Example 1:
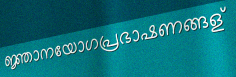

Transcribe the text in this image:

ജ്ഞാനയോഗപ്രഭാഷണങ്ങള്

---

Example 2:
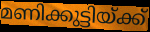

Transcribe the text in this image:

മണിക്കുട്ടിയ്ക്ക്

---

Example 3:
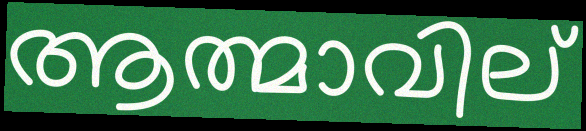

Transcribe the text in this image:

ആത്മാവില്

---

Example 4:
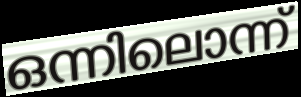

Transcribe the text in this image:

ഒന്നിലൊന്ന്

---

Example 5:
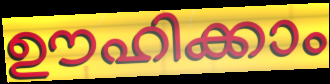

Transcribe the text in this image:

ഊഹിക്കാം